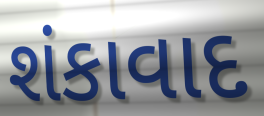
શંકાવાદ